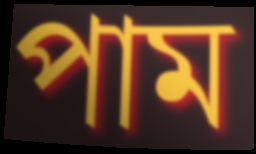
পাম